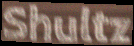
Shultz